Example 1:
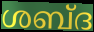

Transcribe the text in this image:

ശബ്ദ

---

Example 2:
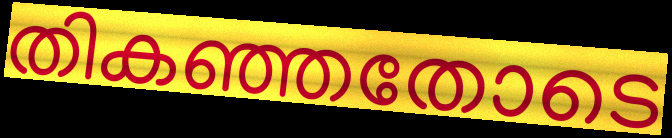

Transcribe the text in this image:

തികഞ്ഞതോടെ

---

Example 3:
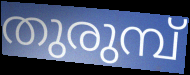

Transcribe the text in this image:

തുരുമ്പ്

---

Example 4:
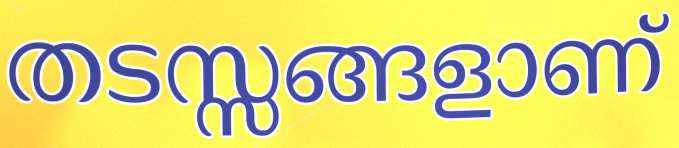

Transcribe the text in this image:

തടസ്സങ്ങളാണ്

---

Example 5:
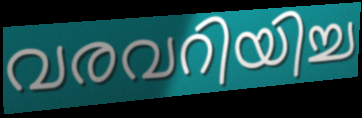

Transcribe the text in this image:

വരവറിയിച്ച